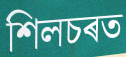
শিলচৰত